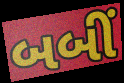
બબીં